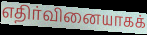
எதிர்வினையாகக்